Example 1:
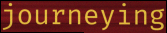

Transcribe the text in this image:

journeying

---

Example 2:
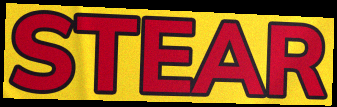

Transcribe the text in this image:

STEAR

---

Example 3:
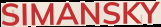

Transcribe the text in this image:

SIMANSKY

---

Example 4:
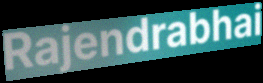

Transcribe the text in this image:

Rajendrabhai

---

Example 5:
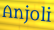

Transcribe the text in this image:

Anjoli